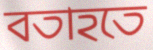
বতাহতে